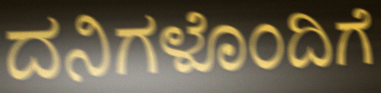
ದನಿಗಳೊಂದಿಗೆ